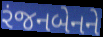
રંજનબેનને